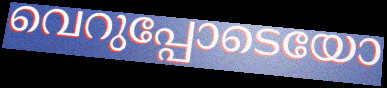
വെറുപ്പോടെയോ